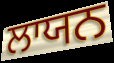
ਲਾਯਨ